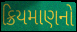
ક્રિયમાણનો